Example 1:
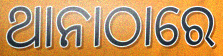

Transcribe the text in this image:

ଥାନାଠାରେ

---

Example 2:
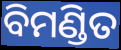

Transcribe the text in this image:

ବିମଣ୍ଡିତ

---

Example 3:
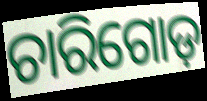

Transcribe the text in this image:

ଚାରିଗୋଡ଼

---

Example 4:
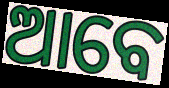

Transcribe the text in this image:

ଆବେ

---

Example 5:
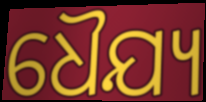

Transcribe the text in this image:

ଧୈଯ୍ୟ